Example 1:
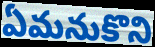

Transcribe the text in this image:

ఏమనుకొని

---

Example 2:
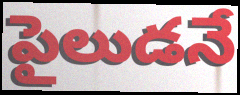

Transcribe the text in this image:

పైలుడనే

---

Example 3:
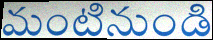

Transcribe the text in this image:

మంటినుండి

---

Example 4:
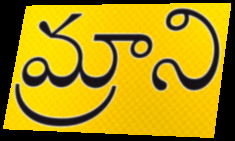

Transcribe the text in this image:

మ్రాని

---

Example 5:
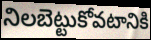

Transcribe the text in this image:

నిలబెట్టుకోవటానికి